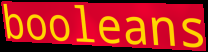
booleans